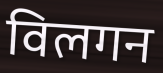
विलगन